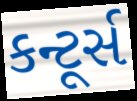
કન્ટૂર્સ